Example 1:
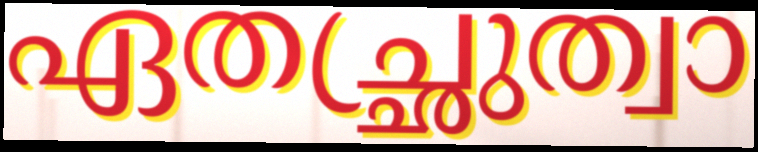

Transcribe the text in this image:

ഏതച്ഛ്രുത്വാ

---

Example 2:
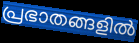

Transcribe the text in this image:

പ്രഭാതങ്ങളിൽ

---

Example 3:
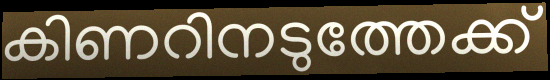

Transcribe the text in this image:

കിണറിനടുത്തേക്ക്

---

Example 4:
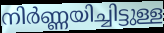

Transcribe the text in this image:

നിർണ്ണയിച്ചിട്ടുള്ള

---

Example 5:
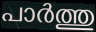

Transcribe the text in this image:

പാർത്തു